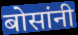
बोसांनी